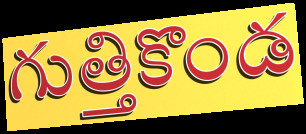
గుత్తికొండ